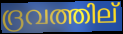
ദ്രവത്തില്